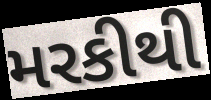
મરકીથી